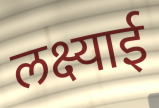
लक्ष्याई